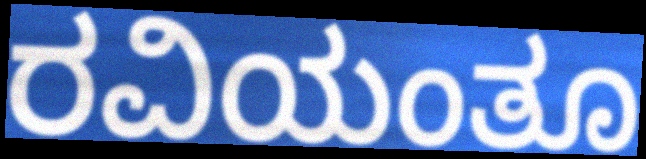
ರವಿಯಂತೂ